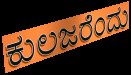
ಕುಲಜರೆಂದು